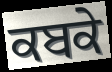
ਕਬਕੇ